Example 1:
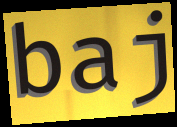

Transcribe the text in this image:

baj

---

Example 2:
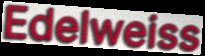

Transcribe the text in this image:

Edelweiss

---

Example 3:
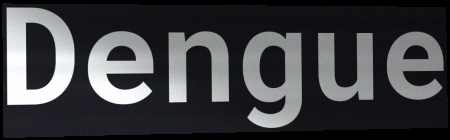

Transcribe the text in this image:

Dengue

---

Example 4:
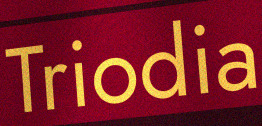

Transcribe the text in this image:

Triodia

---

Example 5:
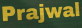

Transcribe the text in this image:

Prajwal